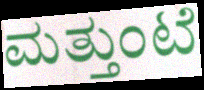
ಮತ್ತುಂಟೆ